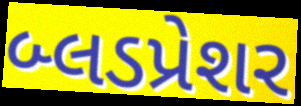
બ્લડપ્રેશર